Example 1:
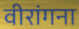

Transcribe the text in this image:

वीरांगना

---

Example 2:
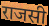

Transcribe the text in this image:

राजसी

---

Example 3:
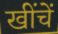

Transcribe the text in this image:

खींचें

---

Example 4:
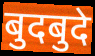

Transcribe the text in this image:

बुदबुदे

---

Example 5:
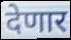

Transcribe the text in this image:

देणार